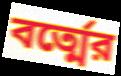
বর্ত্মের